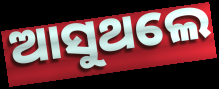
ଆସୁଥଲେ